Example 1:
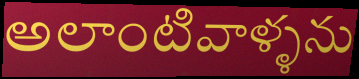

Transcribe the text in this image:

అలాంటివాళ్ళను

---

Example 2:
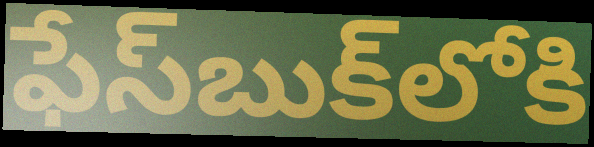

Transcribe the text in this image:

ఫేస్‌బుక్‌లోకి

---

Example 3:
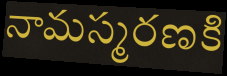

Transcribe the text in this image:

నామస్మరణకి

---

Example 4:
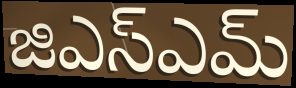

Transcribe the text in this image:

జిఎస్ఎమ్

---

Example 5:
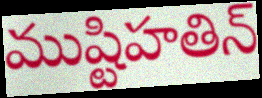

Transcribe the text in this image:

ముష్టిహతిన్